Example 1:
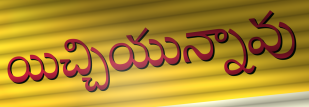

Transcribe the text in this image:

యిచ్చియున్నావు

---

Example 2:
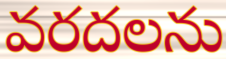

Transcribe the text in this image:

వరదలను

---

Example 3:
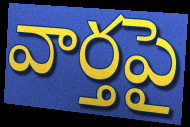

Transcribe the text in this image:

వార్తపై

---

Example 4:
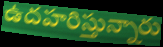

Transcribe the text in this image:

ఉదహరిస్తున్నారు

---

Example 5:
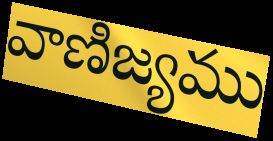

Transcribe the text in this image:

వాణిజ్యము